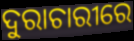
ଦୁରାଚାରୀରେ